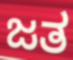
ಜತ